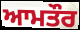
ਆਮਤੌਰ